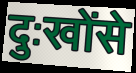
दुःखोंसे